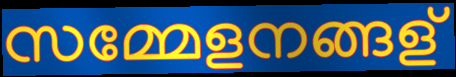
സമ്മേളനങ്ങള്